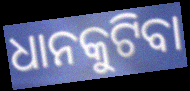
ଧାନକୁଟିବା